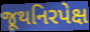
જૂથનિરપેક્ષ